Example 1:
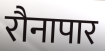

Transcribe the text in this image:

रौनापार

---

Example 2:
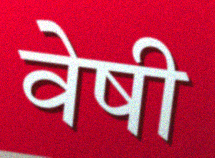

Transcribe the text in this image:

वेषी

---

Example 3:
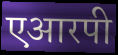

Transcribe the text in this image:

एआरपी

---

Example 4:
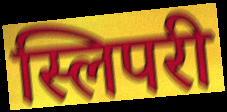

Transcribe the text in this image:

स्लिपरी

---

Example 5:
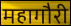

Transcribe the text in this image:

महागौरी